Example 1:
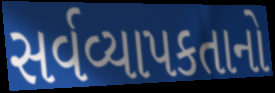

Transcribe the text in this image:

સર્વવ્યાપકતાનો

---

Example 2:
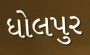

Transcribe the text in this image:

ધોલપુર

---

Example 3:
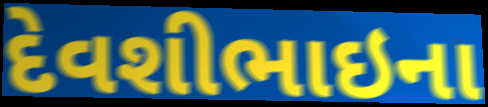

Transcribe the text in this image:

દેવશીભાઇના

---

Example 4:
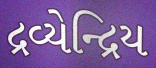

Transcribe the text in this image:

દ્રવ્યેન્દ્રિય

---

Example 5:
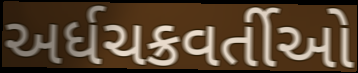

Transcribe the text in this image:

અર્ધચક્રવર્તીઓ